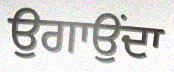
ਉਗਾਉਂਦਾ